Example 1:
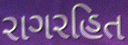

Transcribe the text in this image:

રાગરહિત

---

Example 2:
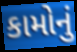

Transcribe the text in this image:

કામોનું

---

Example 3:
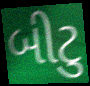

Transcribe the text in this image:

બીટુ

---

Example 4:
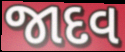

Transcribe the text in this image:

જાદવ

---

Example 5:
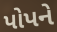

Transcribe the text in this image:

પોપને